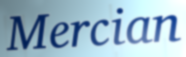
Mercian